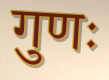
गुणः